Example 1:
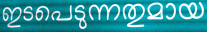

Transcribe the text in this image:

ഇടപെടുന്നതുമായ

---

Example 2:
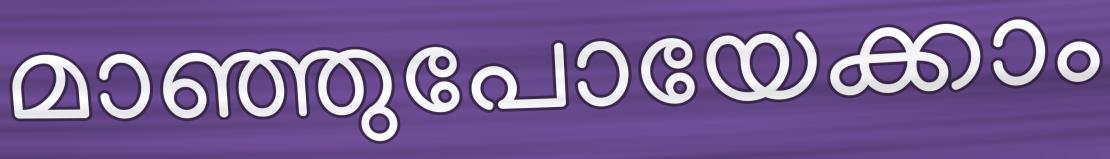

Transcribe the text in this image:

മാഞ്ഞുപോയേക്കാം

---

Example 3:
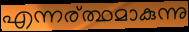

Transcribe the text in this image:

എന്നര്ത്ഥമാകുന്നു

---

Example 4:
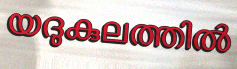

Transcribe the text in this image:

യദുകുലത്തിൽ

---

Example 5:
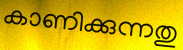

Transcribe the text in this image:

കാണിക്കുന്നതു